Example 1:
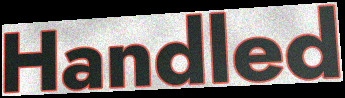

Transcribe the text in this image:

Handled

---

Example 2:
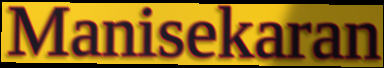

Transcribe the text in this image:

Manisekaran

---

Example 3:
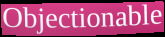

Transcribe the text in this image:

Objectionable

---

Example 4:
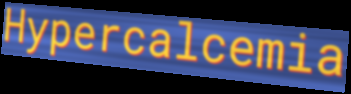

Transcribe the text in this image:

Hypercalcemia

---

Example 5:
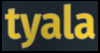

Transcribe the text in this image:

tyala